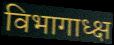
विभागाध्क्ष